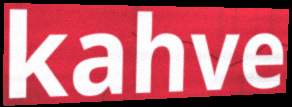
kahve